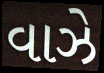
વાઝે